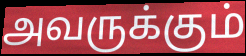
அவருக்கும்